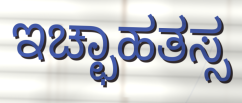
ಇಚ್ಛಾಹತಸ್ಸ